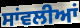
ਸਾਂਵਲੀਆਂ